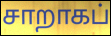
சாறாகப்